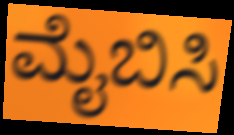
ಮೈಬಿಸಿ